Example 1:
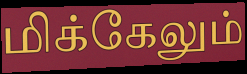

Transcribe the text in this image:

மிக்கேலும்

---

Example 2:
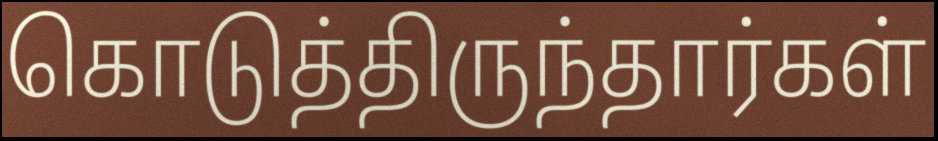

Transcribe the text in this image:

கொடுத்திருந்தார்கள்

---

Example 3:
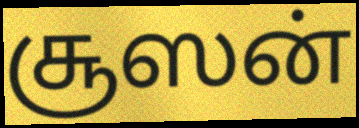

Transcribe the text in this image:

சூஸன்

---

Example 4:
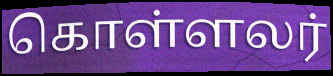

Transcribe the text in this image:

கொள்ளலர்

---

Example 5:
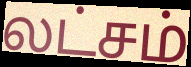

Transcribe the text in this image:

லட்சம்